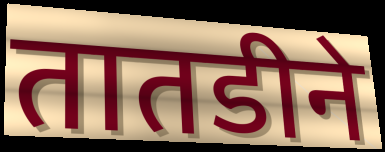
तातडीने